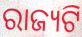
ରାଜ୍ୟଟି